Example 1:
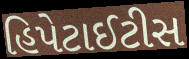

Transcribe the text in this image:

હિપેટાઈટીસ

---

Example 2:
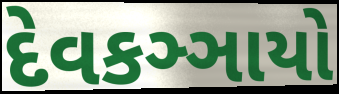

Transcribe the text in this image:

દેવકઞ્ઞાયો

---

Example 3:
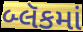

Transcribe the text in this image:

બ્લૅકમાં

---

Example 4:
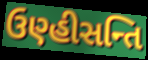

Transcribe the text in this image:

ઉણ્હીસન્તિ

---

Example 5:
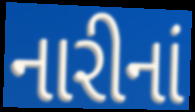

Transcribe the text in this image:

નારીનાં